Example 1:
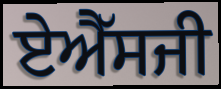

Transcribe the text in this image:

ਏਐੱਸਜੀ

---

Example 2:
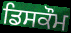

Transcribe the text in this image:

ਡਿਸਕੌਮ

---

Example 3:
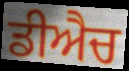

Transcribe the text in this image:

ਡੀਐਚ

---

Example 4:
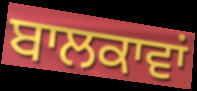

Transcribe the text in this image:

ਬਾਲਕਾਵਾਂ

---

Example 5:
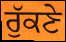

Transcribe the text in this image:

ਰੁੱਕਣੇ